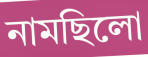
নামছিলো